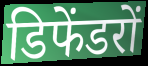
डिफेंडरों